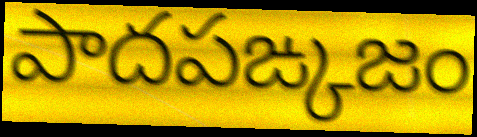
పాదపఙ్కజం